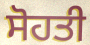
ਸੋਹਤੀ